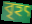
বৃহৎ